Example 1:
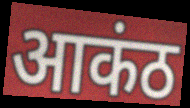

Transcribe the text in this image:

आकंठ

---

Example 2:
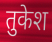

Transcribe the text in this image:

तुकेश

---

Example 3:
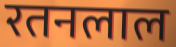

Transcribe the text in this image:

रतनलाल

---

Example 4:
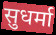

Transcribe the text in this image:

सुधर्मा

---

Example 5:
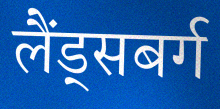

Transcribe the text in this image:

लैंड्सबर्ग